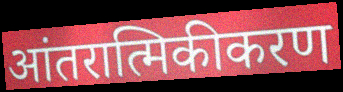
आंतरात्मिकीकरण